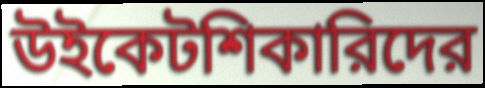
উইকেটশিকারিদের